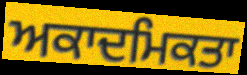
ਅਕਾਦਮਿਕਤਾ